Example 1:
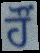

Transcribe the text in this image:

ਹੌਂ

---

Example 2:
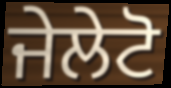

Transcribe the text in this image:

ਜੇਲੇਟੋ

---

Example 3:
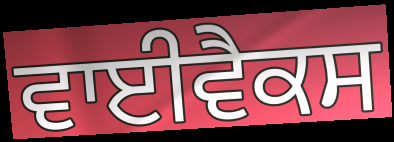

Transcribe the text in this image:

ਵਾਈਵੈਕਸ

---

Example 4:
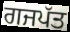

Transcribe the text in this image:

ਗਜਪੱਤ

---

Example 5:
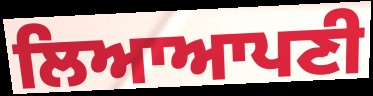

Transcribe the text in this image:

ਲਿਆਆਪਣੀ